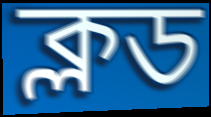
ক্লড